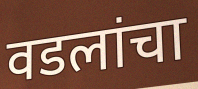
वडलांचा